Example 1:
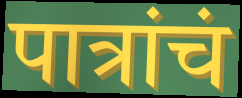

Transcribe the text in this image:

पात्रांचं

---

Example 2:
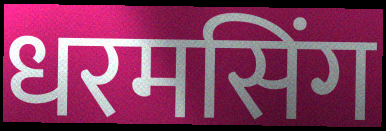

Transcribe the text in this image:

धरमसिंग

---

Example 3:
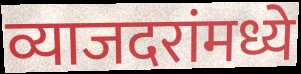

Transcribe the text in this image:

व्याजदरांमध्ये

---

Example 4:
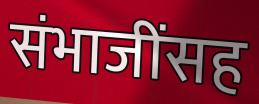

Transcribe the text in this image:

संभाजींसह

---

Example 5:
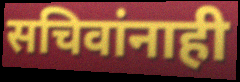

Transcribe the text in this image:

सचिवांनाही